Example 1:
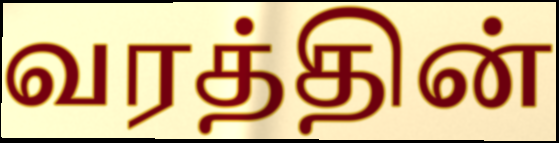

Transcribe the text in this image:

வரத்தின்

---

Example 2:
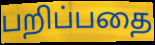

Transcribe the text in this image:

பறிப்பதை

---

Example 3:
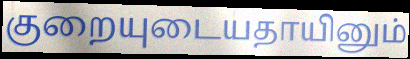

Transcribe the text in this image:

குறையுடையதாயினும்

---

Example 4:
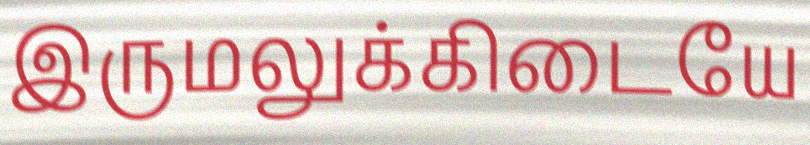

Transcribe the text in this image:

இருமலுக்கிடையே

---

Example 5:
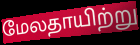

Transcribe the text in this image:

மேலதாயிற்று